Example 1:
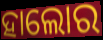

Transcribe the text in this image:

ହାଲୋର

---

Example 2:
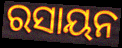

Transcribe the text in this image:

ରସାୟନ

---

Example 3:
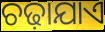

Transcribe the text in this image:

ଚଢ଼ାଯାଏ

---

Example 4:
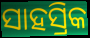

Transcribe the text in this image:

ସାହସ୍ରିକ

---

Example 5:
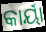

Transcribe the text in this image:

କାର୍ୟା